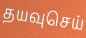
தயவுசெய்